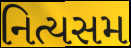
નિત્યસમ